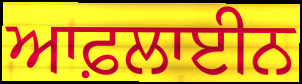
ਆਫ਼ਲਾਈਨ